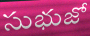
సుభుజో